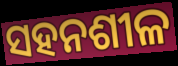
ସହନଶୀଳ